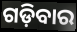
ଗଡ଼ିବାର